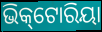
ଭିକ୍‌ଟୋରିୟା